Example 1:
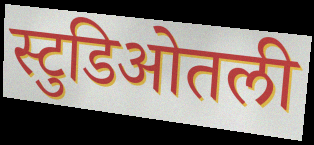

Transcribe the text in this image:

स्टुडिओतली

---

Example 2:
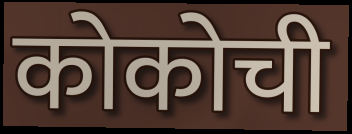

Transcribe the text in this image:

कोकोची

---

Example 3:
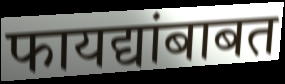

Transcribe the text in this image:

फायद्यांबाबत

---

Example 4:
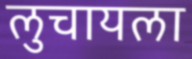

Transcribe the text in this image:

लुचायला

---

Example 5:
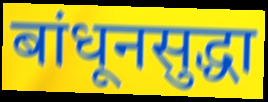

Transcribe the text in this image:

बांधूनसुद्धा